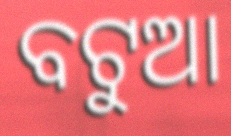
ବଟୁଆ